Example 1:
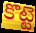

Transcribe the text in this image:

కొట్టె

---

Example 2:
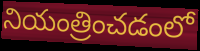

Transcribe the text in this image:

నియంత్రించడంలో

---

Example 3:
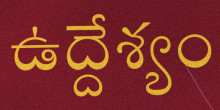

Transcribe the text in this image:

ఉద్దేశ్యం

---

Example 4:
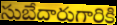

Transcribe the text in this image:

సుబేదారుగారికి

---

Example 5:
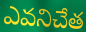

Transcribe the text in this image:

ఎవనిచేత